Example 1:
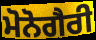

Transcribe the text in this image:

ਮੋਨੋਗੈਰੀ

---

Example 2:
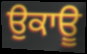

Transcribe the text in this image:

ਉਕਾਊ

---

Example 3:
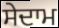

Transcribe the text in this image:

ਸੇਦਾਮ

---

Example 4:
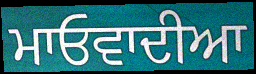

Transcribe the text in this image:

ਮਾਓਵਾਦੀਆ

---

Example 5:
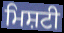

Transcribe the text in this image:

ਮਿਸ਼ਟੀ